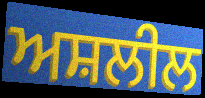
ਅਸ਼ਲੀਲ